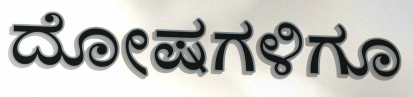
ದೋಷಗಳಿಗೂ